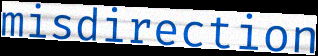
misdirection